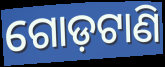
ଗୋଡ଼ଟାଣି